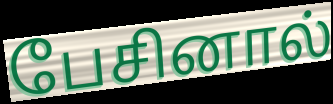
பேசினால்